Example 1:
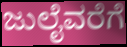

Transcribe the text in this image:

ಜುಲೈವರೆಗೆ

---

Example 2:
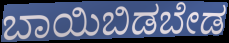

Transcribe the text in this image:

ಬಾಯಿಬಿಡಬೇಡ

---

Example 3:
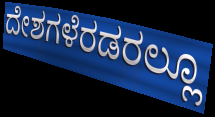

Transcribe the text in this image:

ದೇಶಗಳೆರಡರಲ್ಲೂ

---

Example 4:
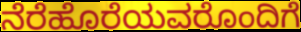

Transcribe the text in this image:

ನೆರೆಹೊರೆಯವರೊಂದಿಗೆ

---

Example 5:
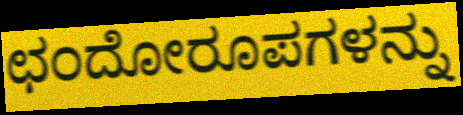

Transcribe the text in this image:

ಛಂದೋರೂಪಗಳನ್ನು